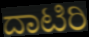
ದಾಟಿರಿ